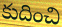
కుదించి